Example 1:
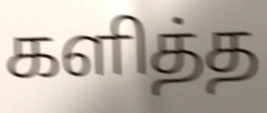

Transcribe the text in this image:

களித்த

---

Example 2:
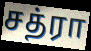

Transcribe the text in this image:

சத்ரா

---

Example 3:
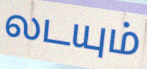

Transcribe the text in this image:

லடயும்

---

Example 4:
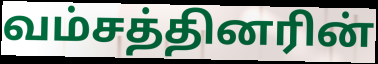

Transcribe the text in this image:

வம்சத்தினரின்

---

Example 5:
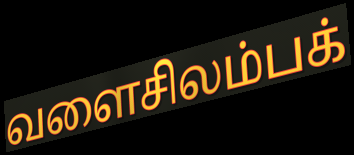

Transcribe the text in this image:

வளைசிலம்பக்